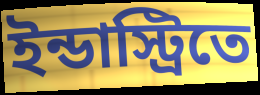
ইন্ডাস্ট্রিতে